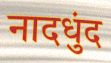
नादधुंद